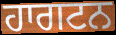
ਹਾਗਟਨ